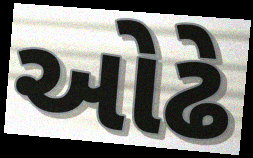
ઓઢે